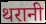
थरानी